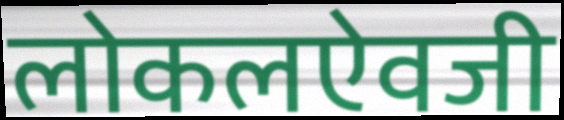
लोकलऐवजी